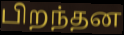
பிறந்தன